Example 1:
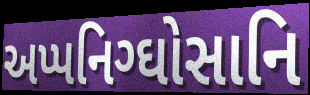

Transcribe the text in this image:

અપ્પનિગ્ઘોસાનિ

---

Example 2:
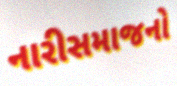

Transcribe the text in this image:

નારીસમાજનો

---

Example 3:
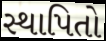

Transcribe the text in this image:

સ્થાપિતો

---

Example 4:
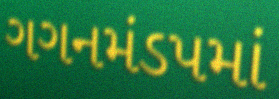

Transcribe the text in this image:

ગગનમંડપમાં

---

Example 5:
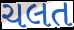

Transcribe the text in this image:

ચલત